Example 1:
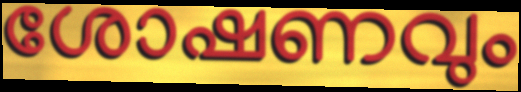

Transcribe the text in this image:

ശോഷണവും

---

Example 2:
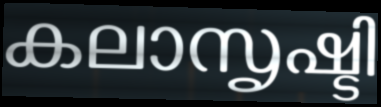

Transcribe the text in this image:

കലാസൃഷ്ടി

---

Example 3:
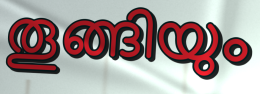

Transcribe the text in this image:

തൂങ്ങിയും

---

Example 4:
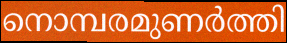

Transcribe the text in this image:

നൊമ്പരമുണർത്തി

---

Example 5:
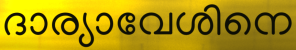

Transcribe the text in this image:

ദാര്യാവേശിനെ